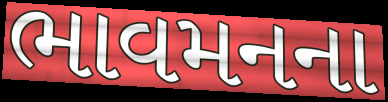
ભાવમનના